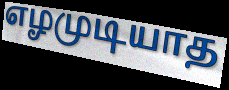
எழமுடியாத